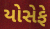
યોસેફે